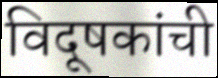
विदूषकांची